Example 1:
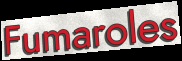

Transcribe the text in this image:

Fumaroles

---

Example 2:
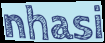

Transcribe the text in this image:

nhasi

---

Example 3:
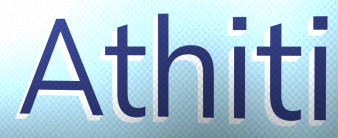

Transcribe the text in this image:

Athiti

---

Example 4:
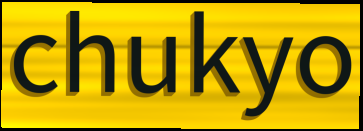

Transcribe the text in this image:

chukyo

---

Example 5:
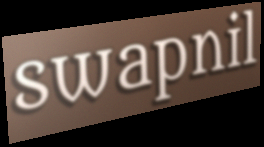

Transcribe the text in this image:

swapnil